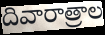
దివారాత్రాల